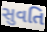
સુવતિ